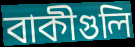
বাকীগুলি